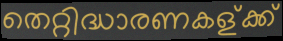
തെറ്റിദ്ധാരണകള്ക്ക്